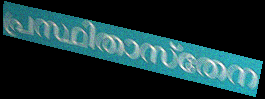
പ്രസ്ഥിതാസ്തേന